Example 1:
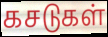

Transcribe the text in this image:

கசடுகள்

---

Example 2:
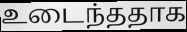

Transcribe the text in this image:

உடைந்ததாக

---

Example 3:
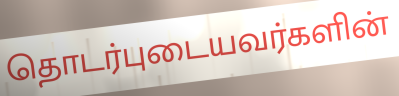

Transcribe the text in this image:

தொடர்புடையவர்களின்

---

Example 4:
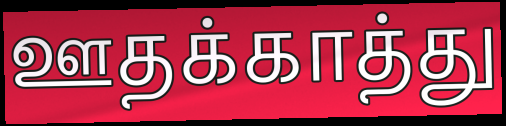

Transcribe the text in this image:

ஊதக்காத்து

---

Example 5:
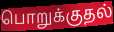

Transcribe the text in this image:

பொறுக்குதல்